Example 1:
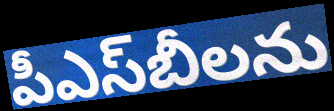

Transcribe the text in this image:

పీఎస్‌బీలను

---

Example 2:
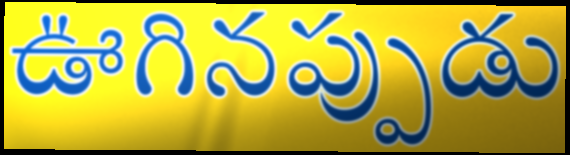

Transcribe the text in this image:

ఊగినప్పుడు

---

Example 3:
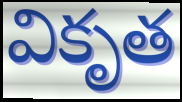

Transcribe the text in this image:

వికృత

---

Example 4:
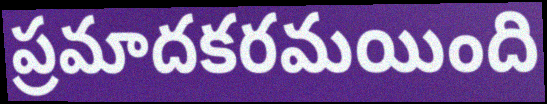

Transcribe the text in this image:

ప్రమాదకరమయింది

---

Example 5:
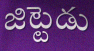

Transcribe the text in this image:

జిట్టెడు